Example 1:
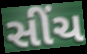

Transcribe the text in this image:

સીંચ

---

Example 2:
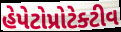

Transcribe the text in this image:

હેપેટોપ્રોટેક્ટીવ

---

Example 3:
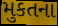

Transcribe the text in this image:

મુકતના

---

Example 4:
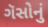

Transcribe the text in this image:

ગૅસોનું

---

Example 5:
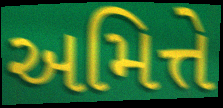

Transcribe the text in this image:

અમિત્તે